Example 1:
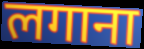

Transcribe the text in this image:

लगाना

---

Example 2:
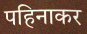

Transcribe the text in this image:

पहिनाकर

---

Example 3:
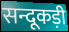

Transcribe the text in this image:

सन्दूकड़ी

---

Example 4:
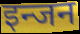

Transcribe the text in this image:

इन्जन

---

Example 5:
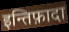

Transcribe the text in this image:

इन्तिफ़ादा